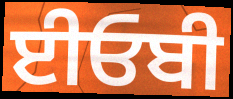
ਈਓਬੀ